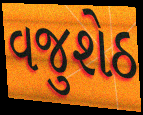
વજુશેઠ